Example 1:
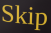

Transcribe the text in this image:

Skip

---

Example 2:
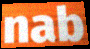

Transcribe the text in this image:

nab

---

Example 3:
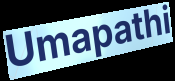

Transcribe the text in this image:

Umapathi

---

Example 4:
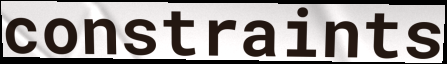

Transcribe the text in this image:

constraints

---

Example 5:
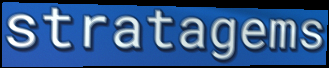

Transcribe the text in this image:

stratagems